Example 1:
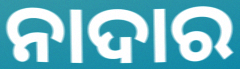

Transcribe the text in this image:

ନାଦାର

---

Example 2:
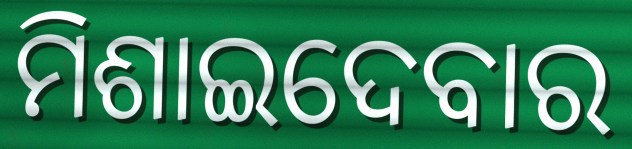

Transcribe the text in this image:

ମିଶାଇଦେବାର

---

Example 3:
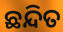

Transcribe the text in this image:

ଛନ୍ଦିତ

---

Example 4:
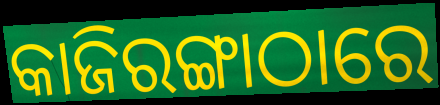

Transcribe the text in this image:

କାଜିରଙ୍ଗାଠାରେ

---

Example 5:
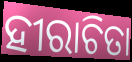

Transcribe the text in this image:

ହୀରାଚିତା